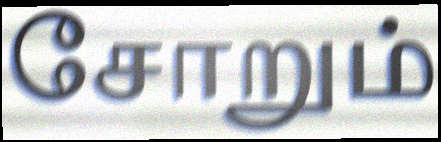
சோறும்